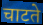
चाटते